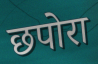
छपोरा